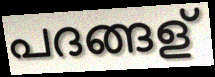
പദങ്ങള്